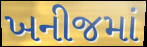
ખનીજમાં